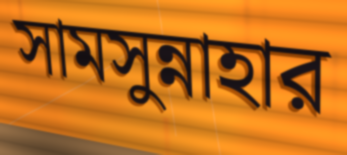
সামসুন্নাহার